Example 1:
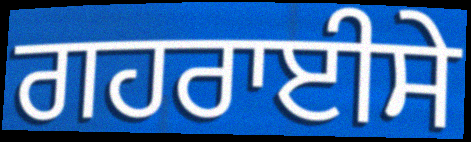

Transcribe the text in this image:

ਗਹਰਾਈਸੇ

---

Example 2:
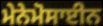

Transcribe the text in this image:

ਮੇਨੇਮੋਸਾਈਨ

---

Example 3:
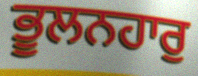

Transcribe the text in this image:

ਭੂਲਨਹਾਰੁ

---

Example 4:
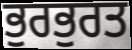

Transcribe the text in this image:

ਭੁਰਭੁਰਤ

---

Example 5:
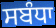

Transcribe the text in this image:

ਸਬੰਧਾ